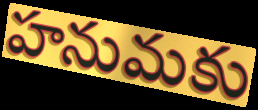
హనుమకు